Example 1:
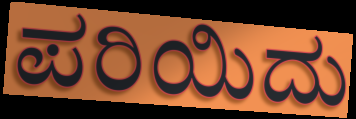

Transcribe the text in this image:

ಪರಿಯಿದು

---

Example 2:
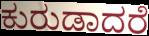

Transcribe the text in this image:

ಕುರುಡಾದರೆ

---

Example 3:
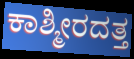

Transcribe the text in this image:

ಕಾಶ್ಮೀರದತ್ತ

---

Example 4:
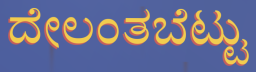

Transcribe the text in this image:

ದೇಲಂತಬೆಟ್ಟು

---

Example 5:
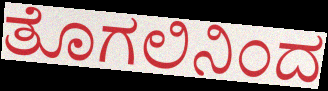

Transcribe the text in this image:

ತೊಗಲಿನಿಂದ